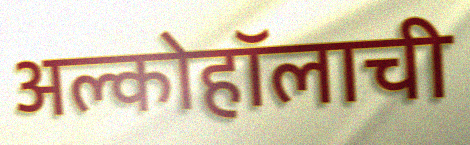
अल्कोहॉलाची